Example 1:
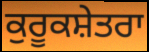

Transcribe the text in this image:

ਕੁਰੂਕਸ਼ੇਤਰਾ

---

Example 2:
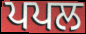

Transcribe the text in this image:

ਪਪਲ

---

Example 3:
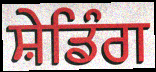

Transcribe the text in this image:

ਸ਼ੇਡਿੰਗ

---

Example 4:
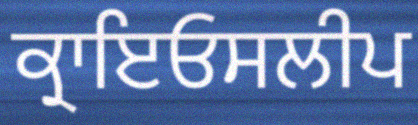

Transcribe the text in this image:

ਕ੍ਰਾਇਓਸਲੀਪ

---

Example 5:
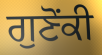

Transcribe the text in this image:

ਗੁਣੋਂਕੀ